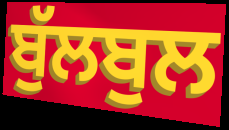
ਬੁੱਲਬੁਲ